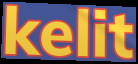
kelit